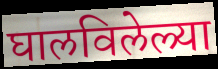
घालविलेल्या